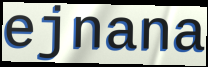
ejnana